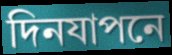
দিনযাপনে